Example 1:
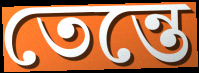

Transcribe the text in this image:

তেন্তে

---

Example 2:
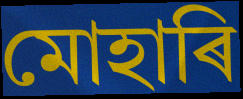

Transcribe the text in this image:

মোহাৰি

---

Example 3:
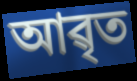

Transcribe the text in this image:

আৱৃত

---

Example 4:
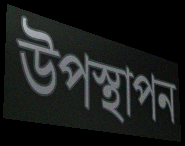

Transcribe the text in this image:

উপস্থাপন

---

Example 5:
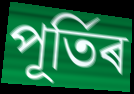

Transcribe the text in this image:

পূৰ্তিৰ